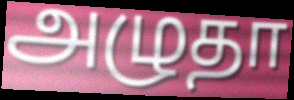
அழுதா